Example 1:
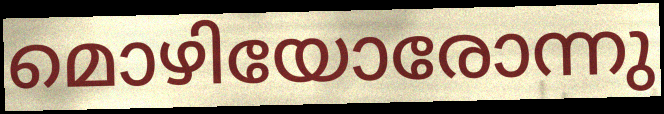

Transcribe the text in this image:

മൊഴിയോരോന്നു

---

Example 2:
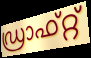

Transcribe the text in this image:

ഡ്രാഫ്റ്റ്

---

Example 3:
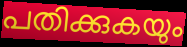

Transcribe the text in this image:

പതിക്കുകയും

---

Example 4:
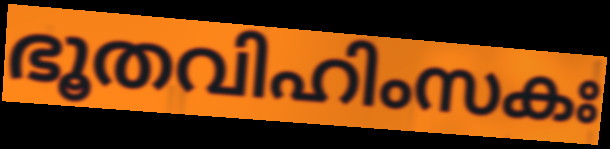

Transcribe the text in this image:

ഭൂതവിഹിംസകഃ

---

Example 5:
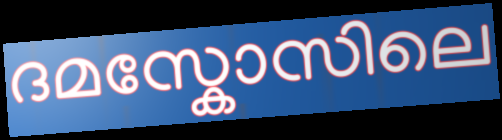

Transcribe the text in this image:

ദമസ്കോസിലെ